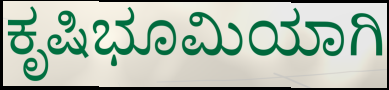
ಕೃಷಿಭೂಮಿಯಾಗಿ